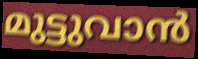
മുട്ടുവാൻ